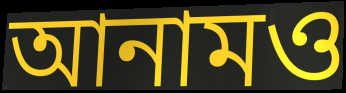
আনামও